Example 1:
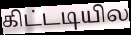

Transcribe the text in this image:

கிட்டடியில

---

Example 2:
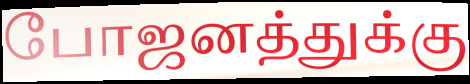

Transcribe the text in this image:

போஜனத்துக்கு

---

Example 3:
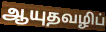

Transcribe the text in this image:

ஆயுதவழிப்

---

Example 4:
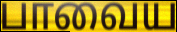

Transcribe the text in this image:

பாவைய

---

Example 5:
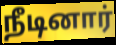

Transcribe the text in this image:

நீடினார்